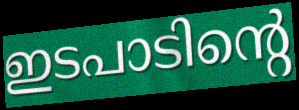
ഇടപാടിന്റെ